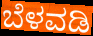
ಬೆಳವಡಿ